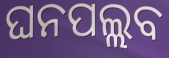
ଘନପଲ୍ଲବ